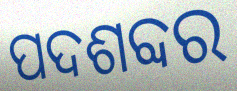
ପଦଶବ୍ଦର